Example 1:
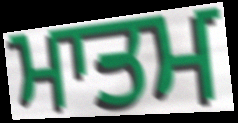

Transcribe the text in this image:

ਮਾਤਮ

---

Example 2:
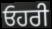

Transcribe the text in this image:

ਓਹਰੀ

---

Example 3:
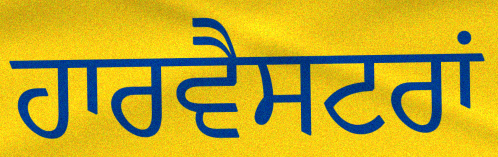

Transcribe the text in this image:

ਹਾਰਵੈਸਟਰਾਂ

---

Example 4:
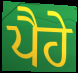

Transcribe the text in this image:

ਪੈਹੇ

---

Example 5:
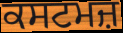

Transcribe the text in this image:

ਕਸਟਮਜ਼